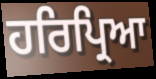
ਹਰਿਪ੍ਰਿਆ